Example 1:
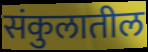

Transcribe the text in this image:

संकुलातील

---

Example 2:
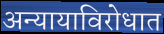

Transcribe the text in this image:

अन्यायाविरोधात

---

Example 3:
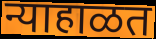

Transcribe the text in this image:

न्याहाळत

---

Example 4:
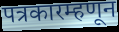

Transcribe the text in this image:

पत्रकारम्हणून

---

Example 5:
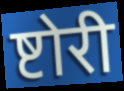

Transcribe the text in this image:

ष्टोरी